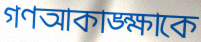
গণআকাঙ্ক্ষাকে